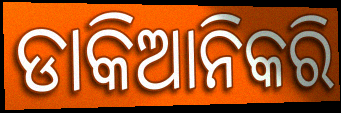
ଡାକିଆନିକରି